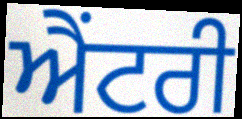
ਐਂਟਰੀ